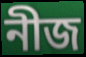
নীজ